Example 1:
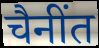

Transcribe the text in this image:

चैनींत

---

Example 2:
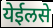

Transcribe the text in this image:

येईलसे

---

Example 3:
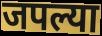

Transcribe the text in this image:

जपल्या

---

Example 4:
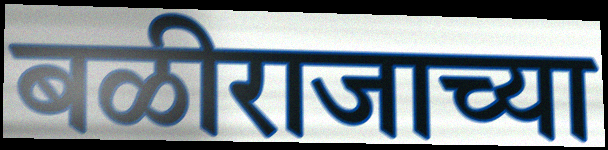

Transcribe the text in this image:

बळीराजाच्या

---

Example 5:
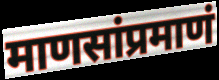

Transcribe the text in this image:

माणसांप्रमाणं